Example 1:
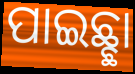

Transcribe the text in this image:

ପାଇଛ୍ଛା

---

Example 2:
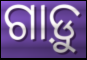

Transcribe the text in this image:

ଗାଡ଼ୁ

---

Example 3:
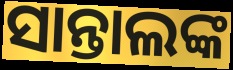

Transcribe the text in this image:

ସାନ୍ତାଲଙ୍କ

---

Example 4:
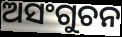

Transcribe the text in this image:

ଅସଂଗୁଚନ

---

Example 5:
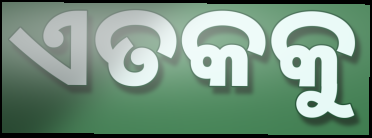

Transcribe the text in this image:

ଏତକକୁ